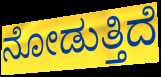
ನೋಡುತ್ತಿದೆ